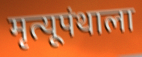
मृत्यूपंथाला